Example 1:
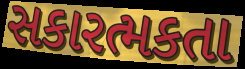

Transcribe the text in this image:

સકારત્મકતા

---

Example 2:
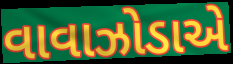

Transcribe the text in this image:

વાવાઝોડાએ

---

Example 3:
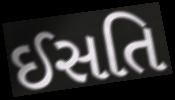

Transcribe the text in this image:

ઈસતિ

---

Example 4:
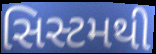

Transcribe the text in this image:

સિસ્ટમથી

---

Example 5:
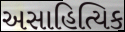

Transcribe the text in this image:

અસાહિત્યિક